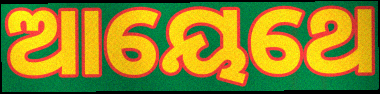
ଆୟେଥେ